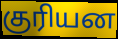
குரியன